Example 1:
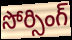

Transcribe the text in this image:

సోర్సింగ్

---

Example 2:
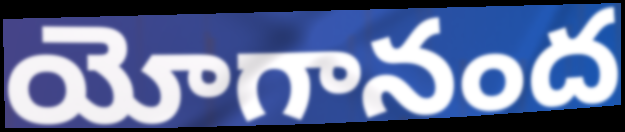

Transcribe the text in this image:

యోగానంద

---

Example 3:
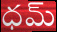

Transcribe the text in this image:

ధమ్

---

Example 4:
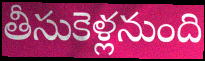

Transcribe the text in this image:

తీసుకెళ్లనుంది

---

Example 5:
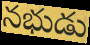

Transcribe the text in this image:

నభుడు